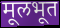
मूलभूत